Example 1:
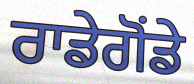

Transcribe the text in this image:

ਰਾਡੇਗੋਂਡੇ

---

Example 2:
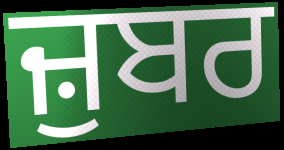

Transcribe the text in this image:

ਜ਼ੁਬਰ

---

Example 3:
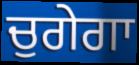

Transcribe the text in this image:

ਚੁਗੇਗਾ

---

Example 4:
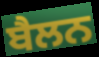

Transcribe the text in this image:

ਬੈਲਨ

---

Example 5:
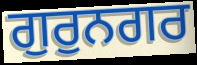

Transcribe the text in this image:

ਗੁਰੁਨਗਰ